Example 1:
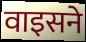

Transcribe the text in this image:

वाइसने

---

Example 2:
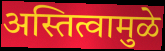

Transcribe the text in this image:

अस्तित्वामुळे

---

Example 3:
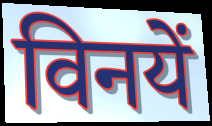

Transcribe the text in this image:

विनयें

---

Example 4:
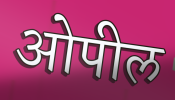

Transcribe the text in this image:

ओपील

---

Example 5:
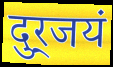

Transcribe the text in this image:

दुर्जयं